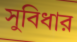
সুবিধার